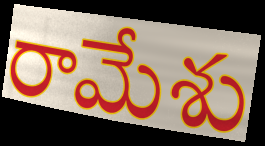
రామేశు